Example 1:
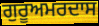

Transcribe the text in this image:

ਗੁਰੂਅਮਰਦਾਸ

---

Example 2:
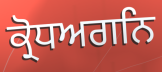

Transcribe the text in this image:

ਕ੍ਰੋਧਅਗਨਿ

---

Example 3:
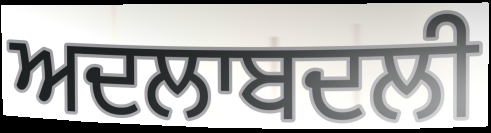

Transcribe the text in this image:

ਅਦਲਾਬਦਲੀ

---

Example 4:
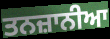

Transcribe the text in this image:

ਤਨਜ਼ਾਨੀਆ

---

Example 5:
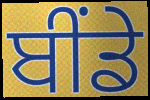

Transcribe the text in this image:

ਬੀਂਡੇ